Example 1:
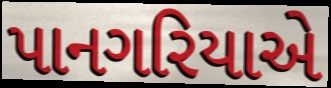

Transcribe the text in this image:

પાનગરિયાએ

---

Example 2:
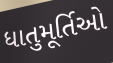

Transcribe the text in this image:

ધાતુમૂર્તિઓ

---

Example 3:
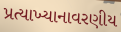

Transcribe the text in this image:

પ્રત્યાખ્યાનાવરણીય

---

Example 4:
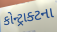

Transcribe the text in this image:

કોન્ટ્રાક્ટના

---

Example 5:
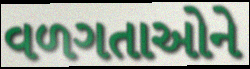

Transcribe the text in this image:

વળગતાઓને